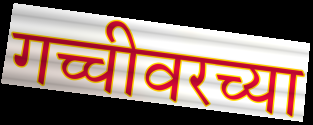
गच्चीवरच्या